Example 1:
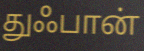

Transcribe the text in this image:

துஃபான்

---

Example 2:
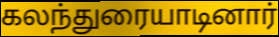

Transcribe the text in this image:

கலந்துரையாடினார்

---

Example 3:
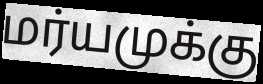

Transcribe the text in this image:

மர்யமுக்கு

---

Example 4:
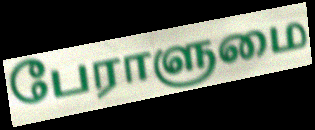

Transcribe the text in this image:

பேராளுமை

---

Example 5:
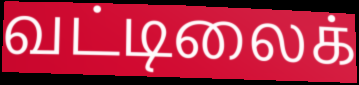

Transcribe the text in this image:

வட்டிலைக்